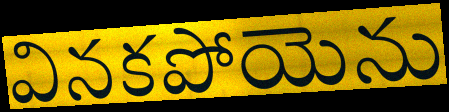
వినకపోయెను